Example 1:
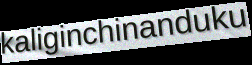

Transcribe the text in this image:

kaliginchinanduku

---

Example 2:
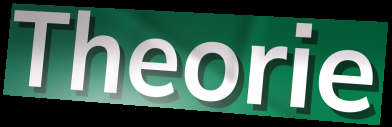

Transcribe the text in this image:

Theorie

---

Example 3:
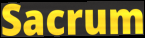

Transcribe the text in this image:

Sacrum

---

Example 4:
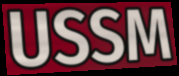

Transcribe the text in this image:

USSM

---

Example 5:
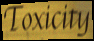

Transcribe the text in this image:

Toxicity